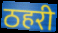
ठहरी